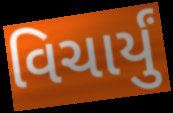
વિચાર્યું